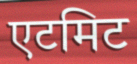
एटमिट